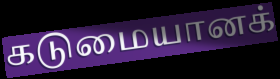
கடுமையானக்